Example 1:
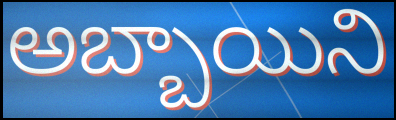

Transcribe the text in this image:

అబ్బాయిని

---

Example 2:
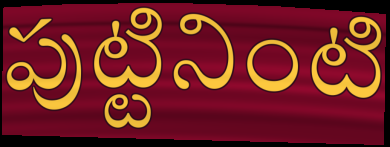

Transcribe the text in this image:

పుట్టినింటి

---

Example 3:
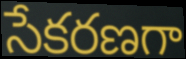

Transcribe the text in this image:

సేకరణగా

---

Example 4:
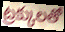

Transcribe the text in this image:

ట్రక్కులతో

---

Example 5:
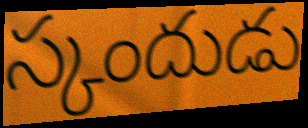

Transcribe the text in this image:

స్కందుడు